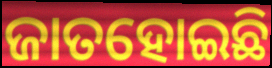
ଜାତହୋଇଛି